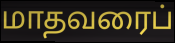
மாதவரைப்